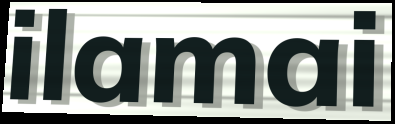
ilamai